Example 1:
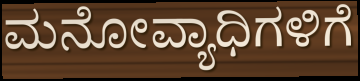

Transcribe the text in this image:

ಮನೋವ್ಯಾಧಿಗಳಿಗೆ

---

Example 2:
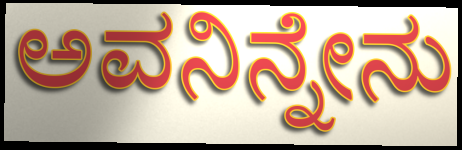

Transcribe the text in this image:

ಅವನಿನ್ನೇನು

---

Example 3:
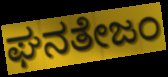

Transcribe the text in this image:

ಘನತೇಜಂ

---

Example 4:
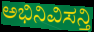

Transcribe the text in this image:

ಅಭಿನಿವಿಸನ್ತಿ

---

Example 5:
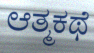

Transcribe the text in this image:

ಆತ್ಮಕಥೆ